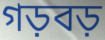
গড়বড়